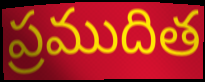
ప్రముదిత